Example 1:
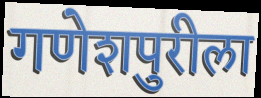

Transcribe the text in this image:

गणेशपुरीला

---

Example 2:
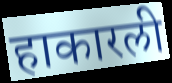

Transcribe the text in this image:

हाकारली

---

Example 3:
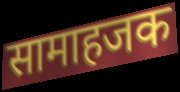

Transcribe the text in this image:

सामाहजक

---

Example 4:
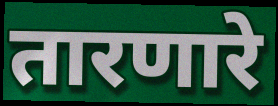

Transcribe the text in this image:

तारणारे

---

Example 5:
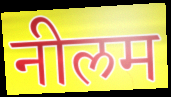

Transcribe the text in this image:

नीलम